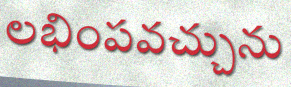
లభింపవచ్చును